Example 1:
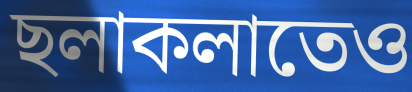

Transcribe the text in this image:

ছলাকলাতেও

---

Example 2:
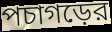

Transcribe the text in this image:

পচাগড়ের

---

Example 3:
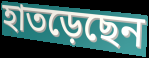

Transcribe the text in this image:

হাতড়েছেন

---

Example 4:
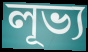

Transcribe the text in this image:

লূভ্য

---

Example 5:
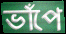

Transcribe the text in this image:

ভাঁপে